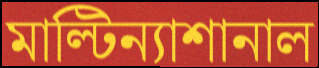
মাল্টিন্যাশানাল